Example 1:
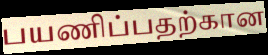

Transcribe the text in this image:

பயணிப்பதற்கான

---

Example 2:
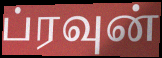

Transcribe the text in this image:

ப்ரவுன்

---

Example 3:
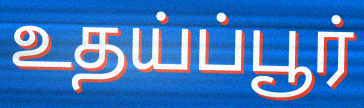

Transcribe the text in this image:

உதய்ப்பூர்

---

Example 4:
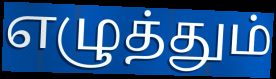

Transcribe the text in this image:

எழுத்தும்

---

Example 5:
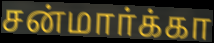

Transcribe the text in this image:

சன்மார்க்கா